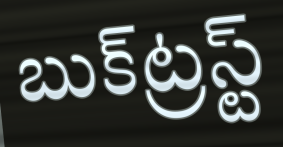
బుక్‌ట్రస్ట్